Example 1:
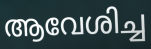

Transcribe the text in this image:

ആവേശിച്ച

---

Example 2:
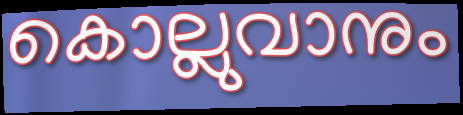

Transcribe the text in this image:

കൊല്ലുവാനും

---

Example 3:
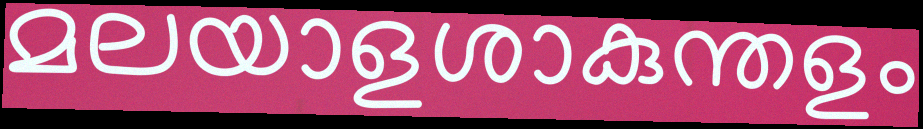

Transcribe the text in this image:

മലയാളശാകുന്തളം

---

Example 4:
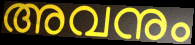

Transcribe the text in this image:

അവനും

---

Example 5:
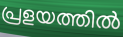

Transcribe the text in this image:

പ്രളയത്തിൽ